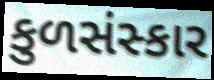
કુળસંસ્કાર